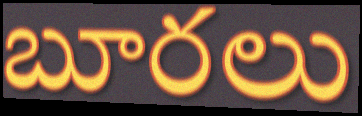
బూరలు